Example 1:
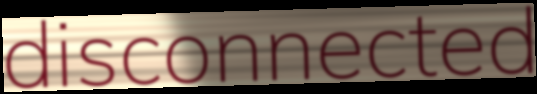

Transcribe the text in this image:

disconnected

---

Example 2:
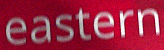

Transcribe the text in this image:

eastern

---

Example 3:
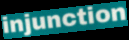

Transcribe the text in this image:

injunction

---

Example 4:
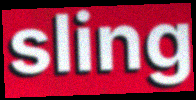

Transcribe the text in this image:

sling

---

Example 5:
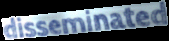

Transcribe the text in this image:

disseminated